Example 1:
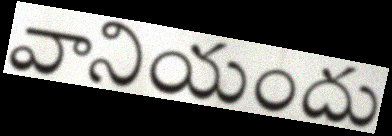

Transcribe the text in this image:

వానియందు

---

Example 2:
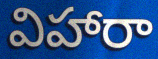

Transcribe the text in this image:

విహారా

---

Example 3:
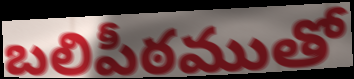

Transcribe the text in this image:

బలిపీఠముతో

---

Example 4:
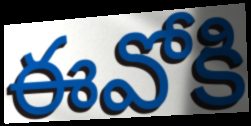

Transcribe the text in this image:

ఈవోకి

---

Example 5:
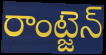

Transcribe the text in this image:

రాంట్జెన్